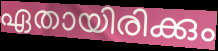
ഏതായിരിക്കും